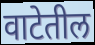
वाटेतील